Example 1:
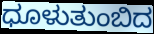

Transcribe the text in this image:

ಧೂಳುತುಂಬಿದ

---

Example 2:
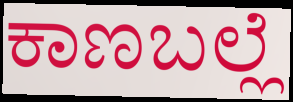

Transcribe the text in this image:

ಕಾಣಬಲ್ಲೆ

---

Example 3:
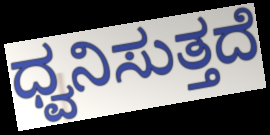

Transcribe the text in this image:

ಧ್ವನಿಸುತ್ತದೆ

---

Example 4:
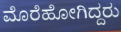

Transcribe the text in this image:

ಮೊರೆಹೋಗಿದ್ದರು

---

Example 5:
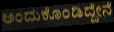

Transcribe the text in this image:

ಅಂದುಕೊಂಡಿದ್ದೇನೆ